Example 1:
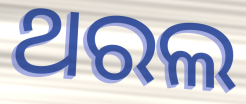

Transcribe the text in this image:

ଥରଲ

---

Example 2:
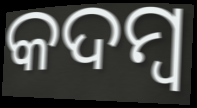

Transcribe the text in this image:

କଦମ୍ୱ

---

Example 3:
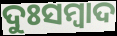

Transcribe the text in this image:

ଦୁଃସମ୍ୱାଦ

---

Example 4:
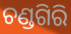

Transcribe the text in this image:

ଚଣ୍ଡଗିରି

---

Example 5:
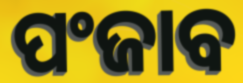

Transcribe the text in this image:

ପଂଜାବ